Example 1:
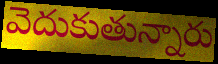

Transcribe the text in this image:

వెదుకుతున్నారు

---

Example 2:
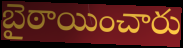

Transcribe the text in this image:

బైఠాయించారు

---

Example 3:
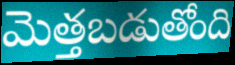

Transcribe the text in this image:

మెత్తబడుతోంది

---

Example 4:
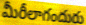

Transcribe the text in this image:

మీరీలాగందురు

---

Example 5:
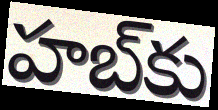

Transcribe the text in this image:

హబ్‌కు